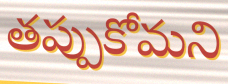
తప్పుకోమని